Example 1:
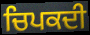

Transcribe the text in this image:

ਚਿਪਕਦੀ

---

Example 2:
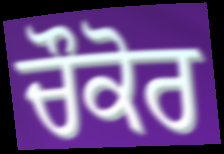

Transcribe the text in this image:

ਚੌਕੋਰ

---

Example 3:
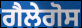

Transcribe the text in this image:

ਗੈਲੇਗੋਸ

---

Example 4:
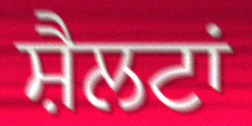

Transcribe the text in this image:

ਸ਼ੈਲਟਾਂ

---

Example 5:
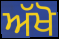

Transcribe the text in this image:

ਅੱਖੋ